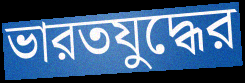
ভারতযুদ্ধের